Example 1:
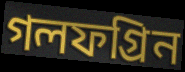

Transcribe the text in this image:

গলফগ্রিন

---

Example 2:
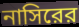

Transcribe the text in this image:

নাসিরের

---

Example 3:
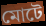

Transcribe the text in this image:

মোটে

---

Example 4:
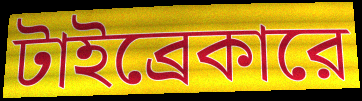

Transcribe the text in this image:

টাইব্রেকারে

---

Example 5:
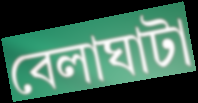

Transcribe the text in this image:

বেলাঘাটা